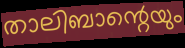
താലിബാന്റെയും